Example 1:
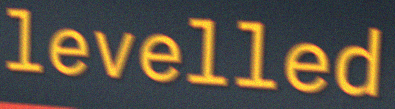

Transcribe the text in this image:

levelled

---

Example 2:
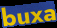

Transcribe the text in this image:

buxa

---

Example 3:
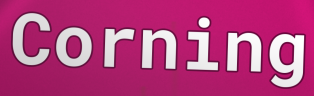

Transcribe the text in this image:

Corning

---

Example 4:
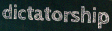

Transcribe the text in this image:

dictatorship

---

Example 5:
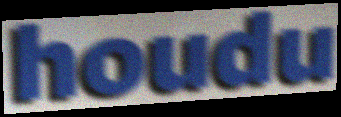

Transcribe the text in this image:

houdu